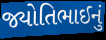
જ્યોતિભાઈનું